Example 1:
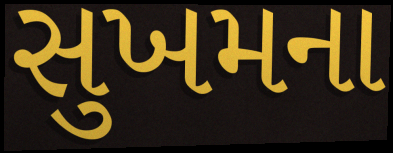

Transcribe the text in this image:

સુખમના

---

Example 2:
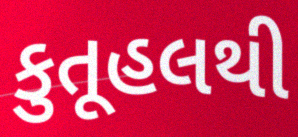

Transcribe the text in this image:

કુતૂહલથી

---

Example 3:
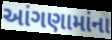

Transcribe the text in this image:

આંગણામાંના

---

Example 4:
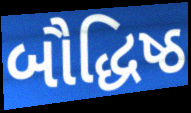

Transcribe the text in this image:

બૌદ્ધિષ્ઠ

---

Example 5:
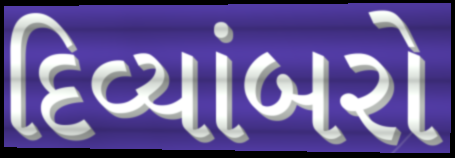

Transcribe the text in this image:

દિવ્યાંબરો